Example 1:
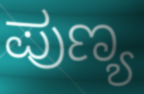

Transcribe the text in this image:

ಪುಣ್ಯ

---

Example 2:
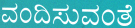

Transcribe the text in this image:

ವಂದಿಸುವಂತೆ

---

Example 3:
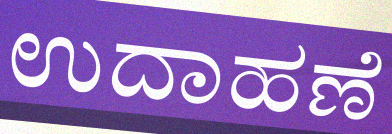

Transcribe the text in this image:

ಉದಾಹಣೆ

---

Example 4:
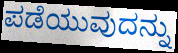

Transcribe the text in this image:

ಪಡೆಯುವುದನ್ನು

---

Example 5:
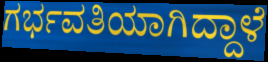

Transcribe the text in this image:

ಗರ್ಭವತಿಯಾಗಿದ್ದಾಳೆ